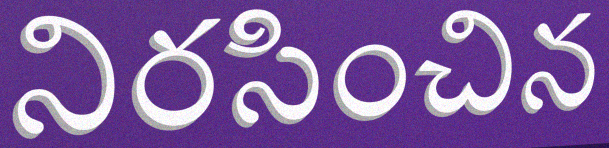
నిరసించిన